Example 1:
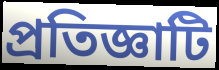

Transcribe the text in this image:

প্রতিজ্ঞাটি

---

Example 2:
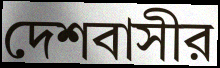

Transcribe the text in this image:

দেশবাসীর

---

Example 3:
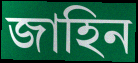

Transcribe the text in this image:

জাহিন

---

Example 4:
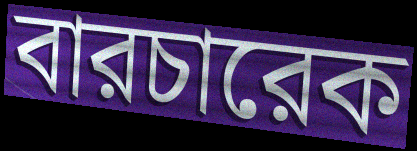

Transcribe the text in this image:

বারচারেক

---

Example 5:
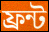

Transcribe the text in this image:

ফ্রন্ট